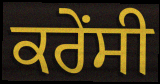
ਕਰੇੰਸੀ